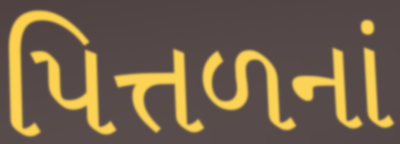
પિત્તળનાં